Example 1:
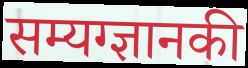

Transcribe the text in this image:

सम्यग्ज्ञानकी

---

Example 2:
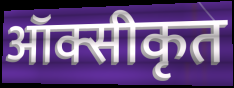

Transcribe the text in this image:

ऑक्सीकृत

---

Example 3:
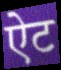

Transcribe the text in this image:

ऐट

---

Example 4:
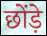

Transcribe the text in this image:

छोंड़े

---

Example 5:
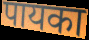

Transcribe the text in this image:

पायका